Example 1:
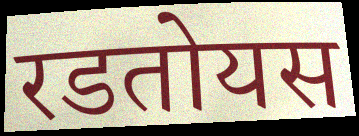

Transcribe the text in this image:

रडतोयस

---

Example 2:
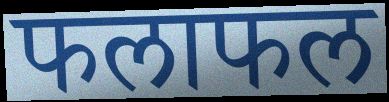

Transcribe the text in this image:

फलाफल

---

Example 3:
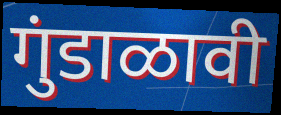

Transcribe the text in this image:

गुंडाळावी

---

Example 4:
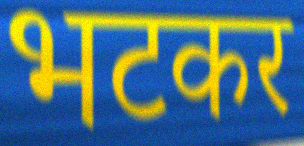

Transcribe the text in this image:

भटकर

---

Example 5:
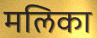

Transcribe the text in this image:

मलिका